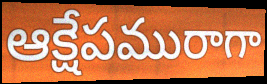
ఆక్షేపమురాగా